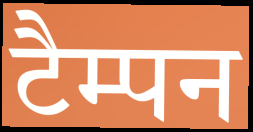
टैम्पन